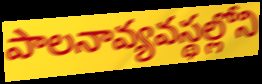
పాలనావ్యవస్థల్లోని